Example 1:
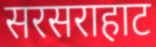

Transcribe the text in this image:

सरसराहाट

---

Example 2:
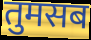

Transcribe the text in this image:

तुमसब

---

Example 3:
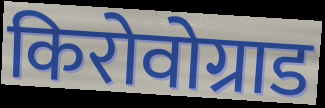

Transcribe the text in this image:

किरोवोग्राड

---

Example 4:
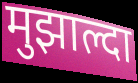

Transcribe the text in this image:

मुझाल्दा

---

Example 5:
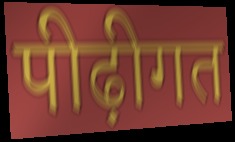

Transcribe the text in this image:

पीढ़ीगत